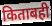
किताबही